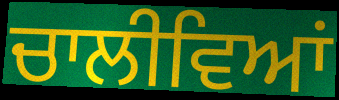
ਚਾਲੀਵਿਆਂ